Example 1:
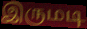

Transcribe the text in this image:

இருமடி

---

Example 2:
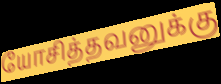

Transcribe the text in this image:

யோசித்தவனுக்கு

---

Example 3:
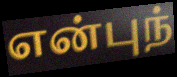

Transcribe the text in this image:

என்புந்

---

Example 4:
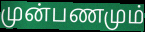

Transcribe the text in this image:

முன்பணமும்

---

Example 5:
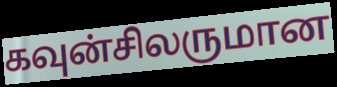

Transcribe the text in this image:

கவுன்சிலருமான